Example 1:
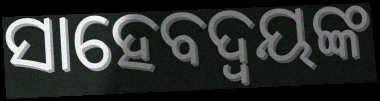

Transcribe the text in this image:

ସାହେବଦ୍ୱୟଙ୍କ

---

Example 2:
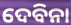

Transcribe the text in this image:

ଦେବିନା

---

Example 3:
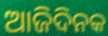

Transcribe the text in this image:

ଆଜିଦିନକ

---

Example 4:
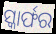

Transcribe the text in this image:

ସ୍କାର୍ଫର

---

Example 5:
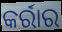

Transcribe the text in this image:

କର୍ରାର